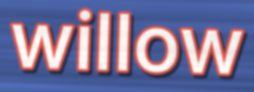
willow